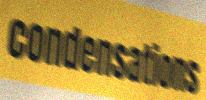
condensations